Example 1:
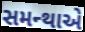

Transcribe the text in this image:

સમન્થાએ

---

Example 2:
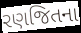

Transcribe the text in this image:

રણજિતના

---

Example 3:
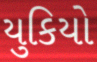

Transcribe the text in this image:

યુકિયો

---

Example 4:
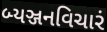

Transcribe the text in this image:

બ્યઞ્જનવિચારં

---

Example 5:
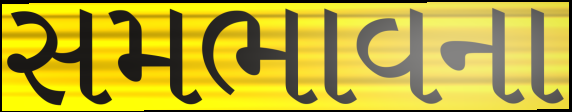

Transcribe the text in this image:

સમભાવના